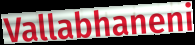
Vallabhaneni